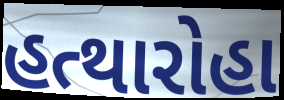
હત્થારોહા